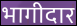
भागीदार